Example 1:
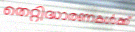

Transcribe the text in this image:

തെറ്റിദ്ധാരണകൾക്ക്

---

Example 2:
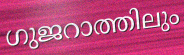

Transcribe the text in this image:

ഗുജറാത്തിലും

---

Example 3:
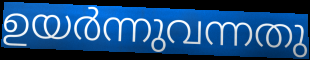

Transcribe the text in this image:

ഉയർന്നുവന്നതു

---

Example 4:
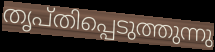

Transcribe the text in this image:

തൃപ്തിപ്പെടുത്തുന്നു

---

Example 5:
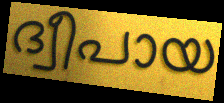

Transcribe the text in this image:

ദ്വീപായ